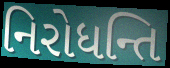
નિરોધન્તિ